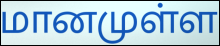
மானமுள்ள